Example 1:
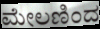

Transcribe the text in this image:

ಮೇಲಣಿಂದ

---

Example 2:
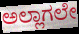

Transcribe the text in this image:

ಅಲ್ಲಾಗಲೇ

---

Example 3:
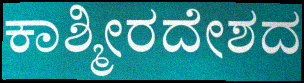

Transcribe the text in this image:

ಕಾಶ್ಮೀರದೇಶದ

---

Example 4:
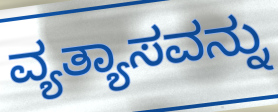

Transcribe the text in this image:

ವ್ಯತ್ಯಾಸವನ್ನು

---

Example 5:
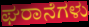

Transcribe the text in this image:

ಘರಾನೆಗಳು